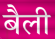
बैली